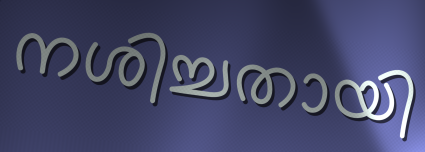
നശിച്ചതായി